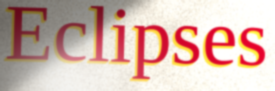
Eclipses